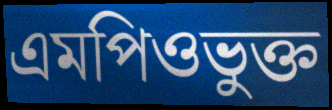
এমপিওভুক্ত